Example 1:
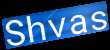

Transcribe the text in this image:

Shvas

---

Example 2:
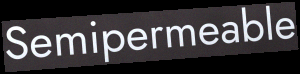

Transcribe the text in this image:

Semipermeable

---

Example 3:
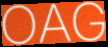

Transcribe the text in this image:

OAG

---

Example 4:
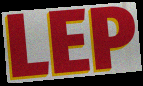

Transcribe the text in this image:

LEP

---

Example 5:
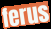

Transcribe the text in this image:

ferus